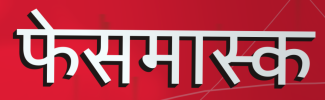
फेसमास्क